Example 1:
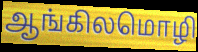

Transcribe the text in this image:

ஆங்கிலமொழி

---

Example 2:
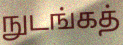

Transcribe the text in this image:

நுடங்கத்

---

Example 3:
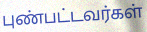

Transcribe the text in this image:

புண்பட்டவர்கள்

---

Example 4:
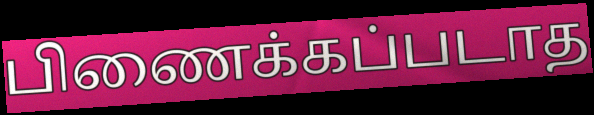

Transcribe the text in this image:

பிணைக்கப்படாத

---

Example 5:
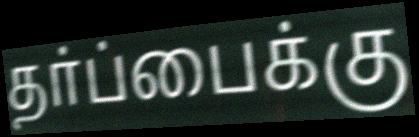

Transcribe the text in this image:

தர்ப்பைக்கு